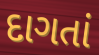
દાગતાં